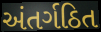
અંતર્ગઠિત